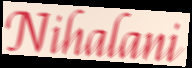
Nihalani